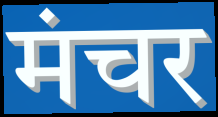
मंचर